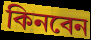
কিনবেন